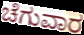
ಚೆಗುವಾರ